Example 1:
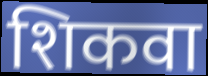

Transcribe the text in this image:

शिकवा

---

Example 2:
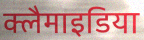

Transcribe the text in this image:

क्लैमाइडिया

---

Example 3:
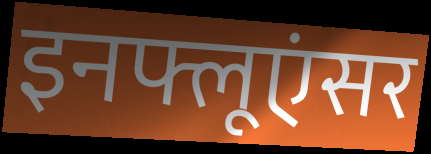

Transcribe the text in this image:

इनफ्लूएंसर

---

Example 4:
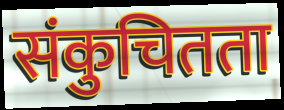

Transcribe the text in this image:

संकुचितता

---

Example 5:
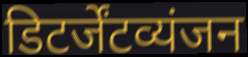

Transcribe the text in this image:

डिटर्जेंटव्यंजन